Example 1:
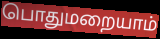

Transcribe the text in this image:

பொதுமறையாம்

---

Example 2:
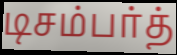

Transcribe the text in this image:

டிசம்பர்த்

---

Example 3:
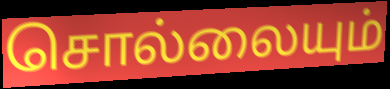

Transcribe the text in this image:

சொல்லையும்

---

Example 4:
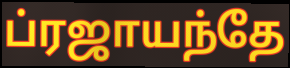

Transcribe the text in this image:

ப்ரஜாயந்தே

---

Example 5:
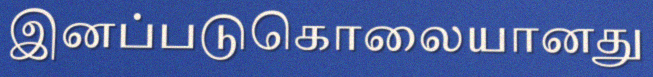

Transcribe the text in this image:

இனப்படுகொலையானது